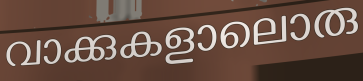
വാക്കുകളാലൊരു